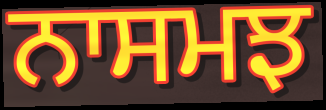
ਨਾਸਮਝ